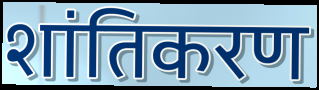
शांतिकरण